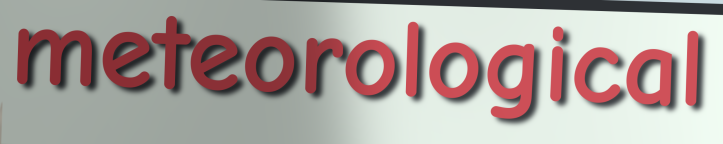
meteorological